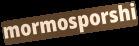
mormosporshi